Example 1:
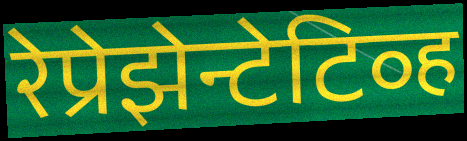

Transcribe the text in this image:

रेप्रेझेन्टेटिव्ह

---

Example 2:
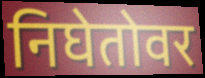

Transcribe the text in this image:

निघेतोवर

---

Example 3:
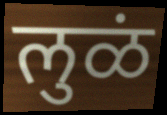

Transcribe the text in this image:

लुळं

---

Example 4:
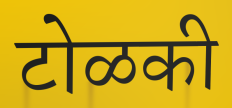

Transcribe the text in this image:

टोळकी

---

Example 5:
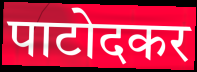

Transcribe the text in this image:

पाटोदकर